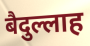
बैदुल्लाह